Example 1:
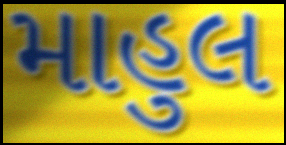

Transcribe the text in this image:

માહુલ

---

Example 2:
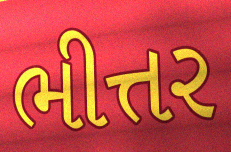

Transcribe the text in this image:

ભીત્તર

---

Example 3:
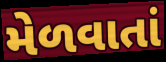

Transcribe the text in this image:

મેળવાતાં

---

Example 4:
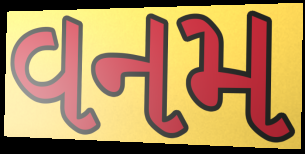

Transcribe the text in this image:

વનમ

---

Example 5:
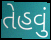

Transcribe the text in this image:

તેહવું